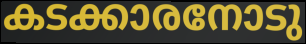
കടക്കാരനോടു